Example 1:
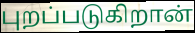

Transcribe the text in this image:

புறப்படுகிறான்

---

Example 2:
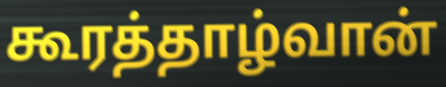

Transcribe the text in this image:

கூரத்தாழ்வான்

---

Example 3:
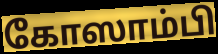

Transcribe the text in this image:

கோஸாம்பி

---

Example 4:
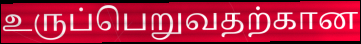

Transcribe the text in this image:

உருப்பெறுவதற்கான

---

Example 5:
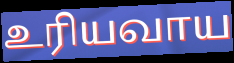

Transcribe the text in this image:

உரியவாய